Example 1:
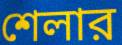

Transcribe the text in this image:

শেলার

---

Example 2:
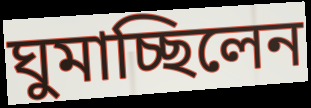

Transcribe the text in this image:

ঘুমাচ্ছিলেন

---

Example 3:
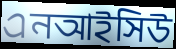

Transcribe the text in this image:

এনআইসিউ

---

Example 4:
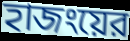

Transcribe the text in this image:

হাজংয়ের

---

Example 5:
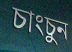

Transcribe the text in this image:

চাংচুন